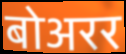
बोअरर